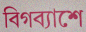
বিগব্যাশে